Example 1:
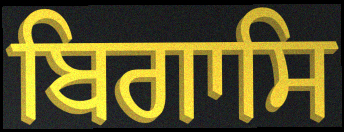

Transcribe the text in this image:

ਬਿਗਾਸਿ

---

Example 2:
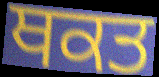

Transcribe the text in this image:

ਥਕਤ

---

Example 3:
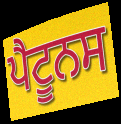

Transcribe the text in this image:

ਪੈਟੂਨਸ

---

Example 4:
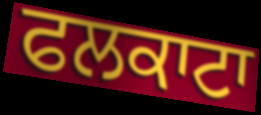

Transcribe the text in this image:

ਫਲਕਾਟਾ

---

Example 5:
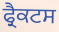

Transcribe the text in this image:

ਫ੍ਰੈਕਟਸ